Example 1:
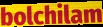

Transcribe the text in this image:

bolchilam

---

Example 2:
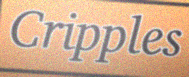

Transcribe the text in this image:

Cripples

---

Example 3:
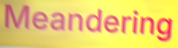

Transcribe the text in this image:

Meandering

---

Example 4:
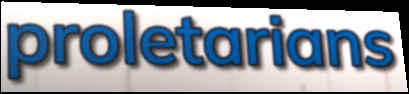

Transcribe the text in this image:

proletarians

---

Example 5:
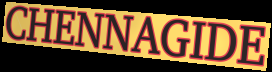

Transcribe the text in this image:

CHENNAGIDE